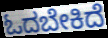
ಓದಬೇಕಿದೆ